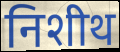
निशीथ